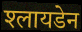
श्लायडेन